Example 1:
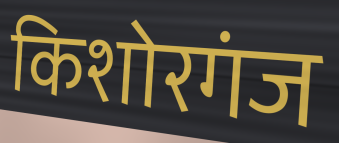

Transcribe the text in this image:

किशोरगंज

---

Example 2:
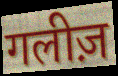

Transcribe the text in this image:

गलीज़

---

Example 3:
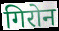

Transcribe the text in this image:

गिरोन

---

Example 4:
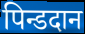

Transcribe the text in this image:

पिन्डदान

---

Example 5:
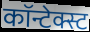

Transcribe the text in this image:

कॉन्टेक्स्ट